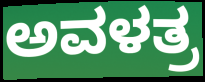
ಅವಳತ್ರ